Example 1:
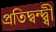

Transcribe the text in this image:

প্ৰতিদ্বন্দ্ব্বী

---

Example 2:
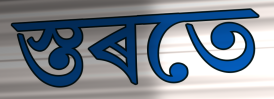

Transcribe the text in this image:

স্তৰতে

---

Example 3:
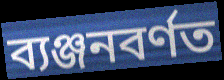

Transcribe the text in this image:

ব্যঞ্জনবৰ্ণত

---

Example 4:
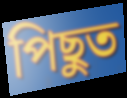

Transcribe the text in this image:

পিছুত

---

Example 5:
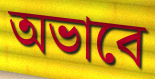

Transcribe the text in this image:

অভাবে